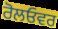
ਰੋਲਓਵਰ